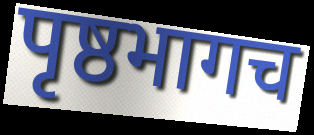
पृष्ठभागच